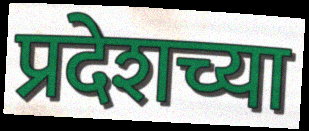
प्रदेशच्या